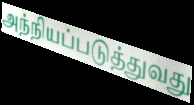
அந்நியப்படுத்துவது